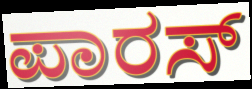
ಪಾರಸ್